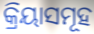
କ୍ରିୟାସମୂହ